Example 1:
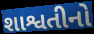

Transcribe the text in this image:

શાશ્વતીનો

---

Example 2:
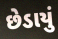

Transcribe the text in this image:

છેડાયું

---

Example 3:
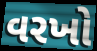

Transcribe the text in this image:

વરખો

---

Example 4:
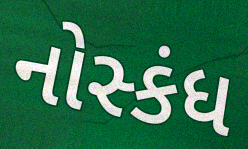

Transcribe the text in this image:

નોસ્કંધ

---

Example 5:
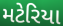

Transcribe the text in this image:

મટેરિયા